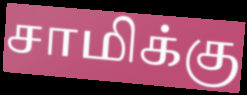
சாமிக்கு